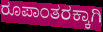
ರೂಪಾಂತರಕ್ಕಾಗಿ